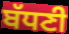
ਬੱਧਣੀ